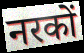
नरकों